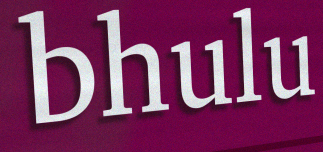
bhulu